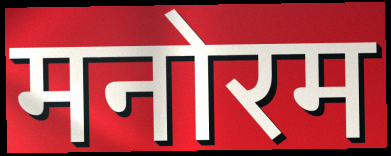
मनोरम